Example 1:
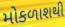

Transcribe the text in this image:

મોકળાશથી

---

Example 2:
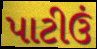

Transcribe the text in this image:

પાટીઉં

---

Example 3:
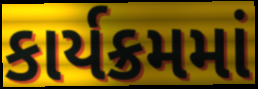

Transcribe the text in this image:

કાર્યક્રમમાં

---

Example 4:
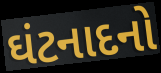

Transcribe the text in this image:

ઘંટનાદનો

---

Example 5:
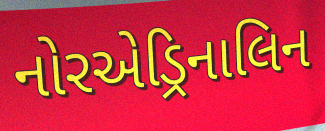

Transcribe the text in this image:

નોરએડ્રિનાલિન